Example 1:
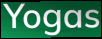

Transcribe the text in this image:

Yogas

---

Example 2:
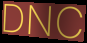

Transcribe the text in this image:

DNC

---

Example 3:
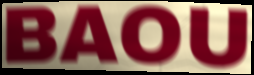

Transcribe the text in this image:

BAOU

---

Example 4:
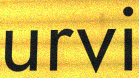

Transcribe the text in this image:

urvi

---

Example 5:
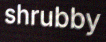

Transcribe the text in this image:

shrubby